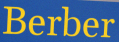
Berber